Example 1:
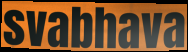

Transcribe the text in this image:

svabhava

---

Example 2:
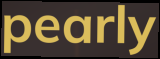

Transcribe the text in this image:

pearly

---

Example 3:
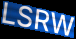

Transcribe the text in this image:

LSRW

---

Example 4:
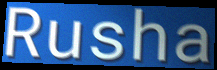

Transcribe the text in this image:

Rusha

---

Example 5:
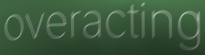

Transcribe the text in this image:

overacting